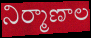
నిర్మాణాల